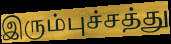
இரும்புச்சத்து